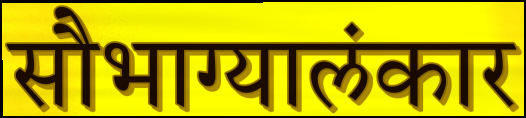
सौभाग्यालंकार